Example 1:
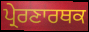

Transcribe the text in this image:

ਪ੍ਰੇਰਣਾਰਥਕ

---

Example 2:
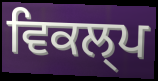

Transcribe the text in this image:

ਵਿਕਲ੍ਪ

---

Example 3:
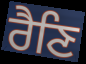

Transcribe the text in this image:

ਰੈਣਿ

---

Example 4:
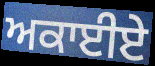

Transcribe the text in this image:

ਅਕਾਈਏ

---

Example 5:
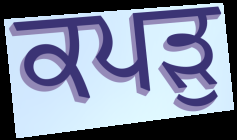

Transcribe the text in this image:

ਕਪੜੁ